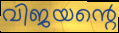
വിജയന്റെ